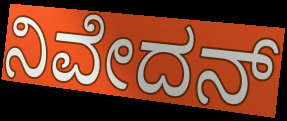
ನಿವೇದನ್